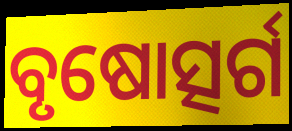
ବୃଷୋତ୍ସର୍ଗ